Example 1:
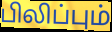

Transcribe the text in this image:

பிலிப்பும்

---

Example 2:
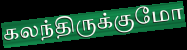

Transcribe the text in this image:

கலந்திருக்குமோ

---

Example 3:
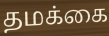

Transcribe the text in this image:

தமக்கை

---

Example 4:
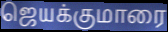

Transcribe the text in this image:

ஜெயக்குமாரை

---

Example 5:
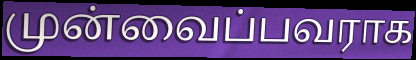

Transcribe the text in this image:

முன்வைப்பவராக